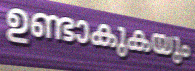
ഉണ്ടാകുകയും